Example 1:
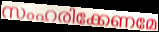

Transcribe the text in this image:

സംഹരിക്കേണമേ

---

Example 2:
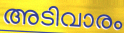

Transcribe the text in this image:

അടിവാരം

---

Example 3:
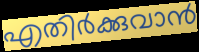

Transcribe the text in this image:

എതിർക്കുവാൻ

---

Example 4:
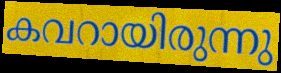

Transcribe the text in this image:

കവറായിരുന്നു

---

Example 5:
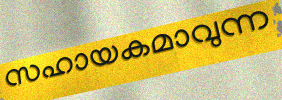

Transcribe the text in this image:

സഹായകമാവുന്ന